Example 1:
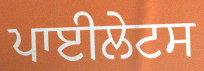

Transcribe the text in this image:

ਪਾਈਲੇਟਸ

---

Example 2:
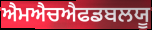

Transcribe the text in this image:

ਐਮਐਚਐਫਡਬਲਯੂ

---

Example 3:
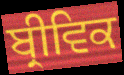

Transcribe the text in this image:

ਬ੍ਰੀਵਿਕ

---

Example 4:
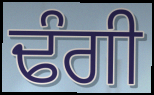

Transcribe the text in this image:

ਢੰਗੀ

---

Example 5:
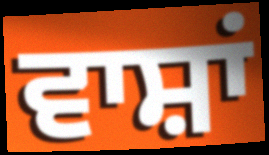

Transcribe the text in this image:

ਵਾਸ਼ਾਂ